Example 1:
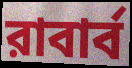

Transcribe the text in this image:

রাবার্ব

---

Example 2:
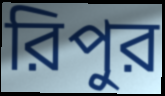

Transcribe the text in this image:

রিপুর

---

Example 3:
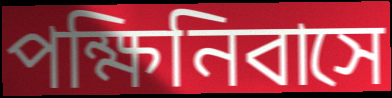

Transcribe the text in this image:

পক্ষিনিবাসে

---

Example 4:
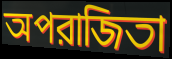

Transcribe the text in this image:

অপরাজিতা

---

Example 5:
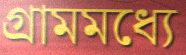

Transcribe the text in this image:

গ্রামমধ্যে